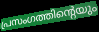
പ്രസംഗത്തിന്റെയും